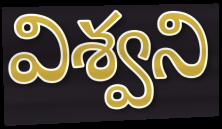
విశ్వని